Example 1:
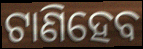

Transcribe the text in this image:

ଟାଣିହେବ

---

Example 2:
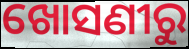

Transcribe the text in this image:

ଖୋସଣୀରୁ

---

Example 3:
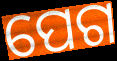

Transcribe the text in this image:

ପେଗ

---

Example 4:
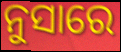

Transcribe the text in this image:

ନୁସାରେ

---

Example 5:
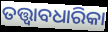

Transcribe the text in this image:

ତତ୍ତ୍ୱାବଧାରିକା